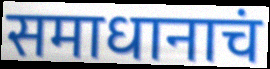
समाधानाचं